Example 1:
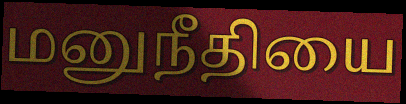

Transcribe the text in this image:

மனுநீதியை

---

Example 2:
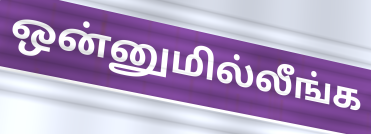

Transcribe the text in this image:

ஒன்னுமில்லீங்க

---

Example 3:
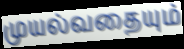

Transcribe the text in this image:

முயல்வதையும்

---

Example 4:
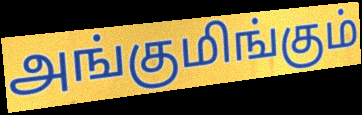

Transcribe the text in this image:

அங்குமிங்கும்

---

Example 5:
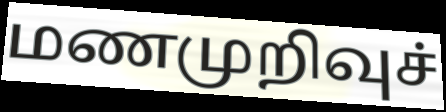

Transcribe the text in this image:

மணமுறிவுச்